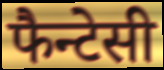
फैन्टेसी